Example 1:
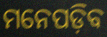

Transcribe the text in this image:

ମନେପଡ଼ିବ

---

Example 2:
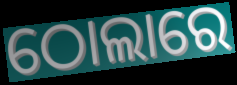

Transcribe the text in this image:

ଠୋଲାରେ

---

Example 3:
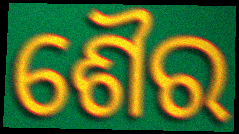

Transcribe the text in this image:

ଶୈର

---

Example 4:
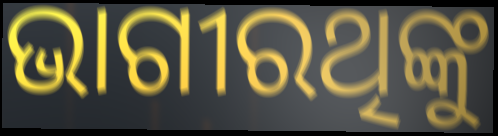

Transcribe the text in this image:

ଭାଗୀରଥିଙ୍କୁ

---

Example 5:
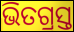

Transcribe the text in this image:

ଭିତଗ୍ରସ୍ତ